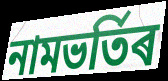
নামভৰ্তিৰ